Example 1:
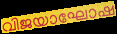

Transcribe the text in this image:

വിജയാഘോഷ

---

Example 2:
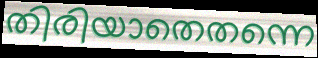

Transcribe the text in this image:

തിരിയാതെതന്നെ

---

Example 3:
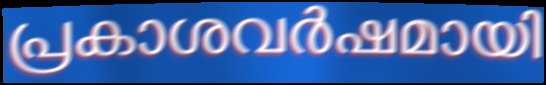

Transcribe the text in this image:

പ്രകാശവർഷമായി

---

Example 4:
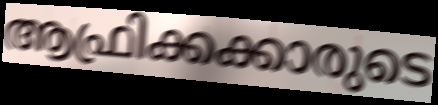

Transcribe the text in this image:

ആഫ്രിക്കക്കാരുടെ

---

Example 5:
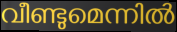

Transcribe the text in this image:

വീണ്ടുമെന്നിൽ